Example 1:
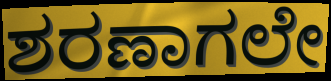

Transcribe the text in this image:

ಶರಣಾಗಲೇ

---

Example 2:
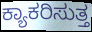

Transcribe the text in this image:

ಕ್ಯಾಕರಿಸುತ್ತ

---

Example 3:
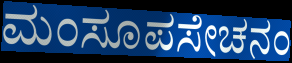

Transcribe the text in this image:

ಮಂಸೂಪಸೇಚನಂ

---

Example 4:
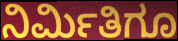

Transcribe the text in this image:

ನಿರ್ಮಿತಿಗೂ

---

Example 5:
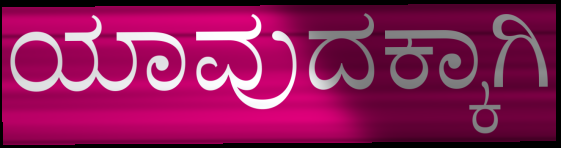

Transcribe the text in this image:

ಯಾವುದಕ್ಕಾಗಿ